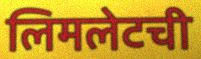
लिमलेटची